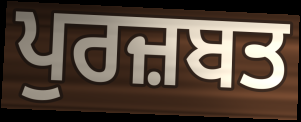
ਪੁਰਜ਼ਬਤ